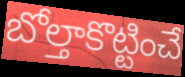
బోల్తాకొట్టించే